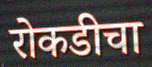
रोकडीचा